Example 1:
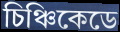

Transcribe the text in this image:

চিঞ্চিকেডে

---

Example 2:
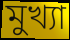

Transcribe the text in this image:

মুখ্যা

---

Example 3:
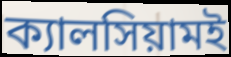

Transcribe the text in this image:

ক্যালসিয়ামই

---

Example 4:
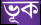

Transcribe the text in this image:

ভূক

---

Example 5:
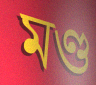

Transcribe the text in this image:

মণ্ড